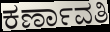
ಕರ್ಣಾವತಿ